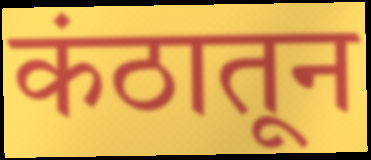
कंठातून